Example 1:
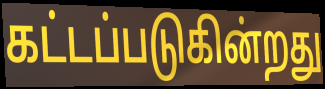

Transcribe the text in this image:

கட்டப்படுகின்றது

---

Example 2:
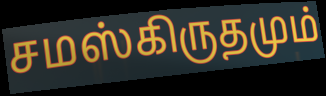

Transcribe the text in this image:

சமஸ்கிருதமும்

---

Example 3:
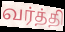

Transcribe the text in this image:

வர்த்தி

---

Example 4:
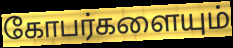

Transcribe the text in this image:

கோபர்களையும்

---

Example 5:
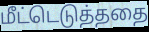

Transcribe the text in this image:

மீட்டெடுத்ததை